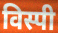
विस्पी